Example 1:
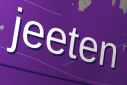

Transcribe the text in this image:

jeeten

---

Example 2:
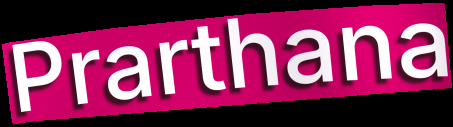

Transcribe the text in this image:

Prarthana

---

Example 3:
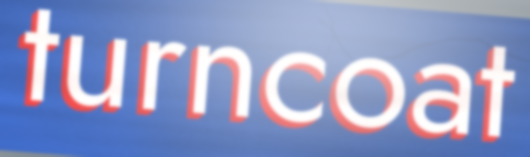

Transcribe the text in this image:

turncoat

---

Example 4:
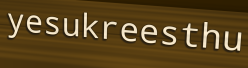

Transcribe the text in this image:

yesukreesthu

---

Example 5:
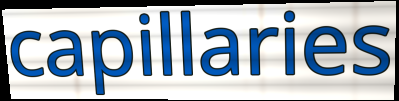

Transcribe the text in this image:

capillaries